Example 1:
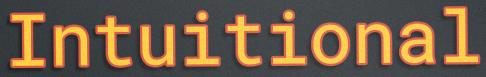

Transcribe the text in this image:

Intuitional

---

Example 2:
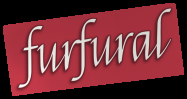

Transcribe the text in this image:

furfural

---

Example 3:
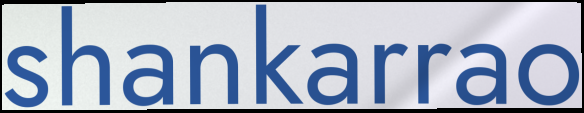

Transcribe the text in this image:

shankarrao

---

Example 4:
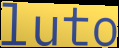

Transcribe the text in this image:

luto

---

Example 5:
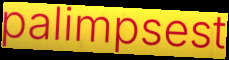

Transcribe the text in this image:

palimpsest